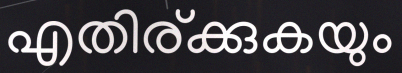
എതിര്ക്കുകയും